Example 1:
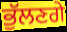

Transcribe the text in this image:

ਭੁੱਲਣਗੇ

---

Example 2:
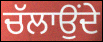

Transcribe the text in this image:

ਚੱਲਾਉਂਦੇ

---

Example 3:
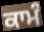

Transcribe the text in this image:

ਕਾਮੰ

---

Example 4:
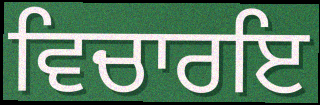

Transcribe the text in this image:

ਵਿਚਾਰਇ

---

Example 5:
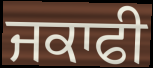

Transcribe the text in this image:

ਜਕਾਫੀ